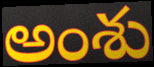
అంశు